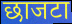
छाजटा